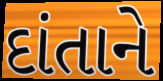
દાંતાને